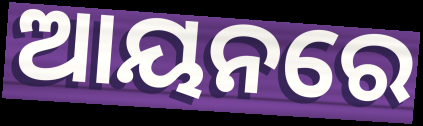
ଆୟନରେ